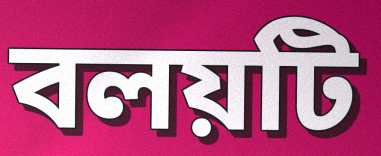
বলয়টি